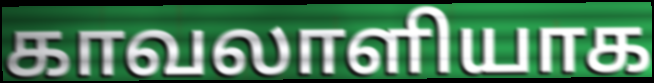
காவலாளியாக